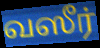
வஸீர்